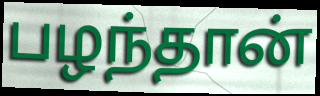
பழந்தான்